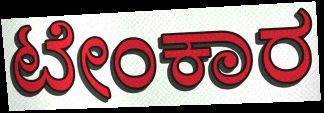
ಟೇಂಕಾರ